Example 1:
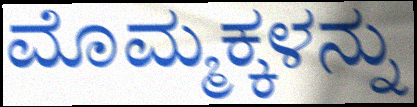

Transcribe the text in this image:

ಮೊಮ್ಮಕ್ಕಳನ್ನು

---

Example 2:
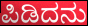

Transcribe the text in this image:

ಪಿಡಿದನು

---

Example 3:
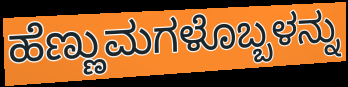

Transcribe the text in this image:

ಹೆಣ್ಣುಮಗಳೊಬ್ಬಳನ್ನು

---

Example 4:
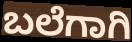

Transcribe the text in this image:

ಬಲೆಗಾಗಿ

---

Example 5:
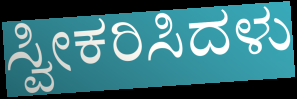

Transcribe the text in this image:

ಸ್ವೀಕರಿಸಿದಳು